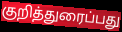
குறித்துரைப்பது